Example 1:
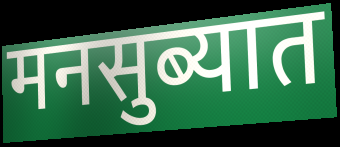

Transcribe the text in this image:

मनसुब्यात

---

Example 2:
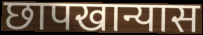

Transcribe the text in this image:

छापखान्यास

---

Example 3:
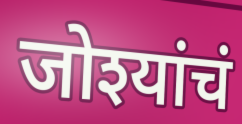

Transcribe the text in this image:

जोश्यांचं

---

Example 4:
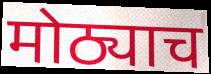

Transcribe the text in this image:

मोठ्याच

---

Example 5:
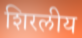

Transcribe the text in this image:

शिरलीय